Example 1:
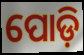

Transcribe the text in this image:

ପୋଡ଼ି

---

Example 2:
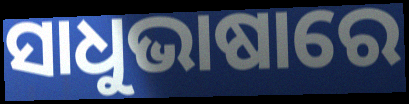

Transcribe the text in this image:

ସାଧୁଭାଷାରେ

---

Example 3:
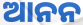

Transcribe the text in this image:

ଆନନ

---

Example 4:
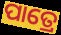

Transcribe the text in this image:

ପାତ୍ରେ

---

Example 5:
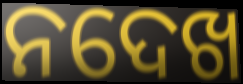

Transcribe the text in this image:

ନଦେଖ